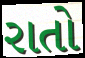
રાતો